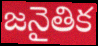
జనైతిక